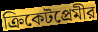
ক্রিকেটপ্রেমীর